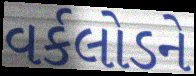
વર્કલોડને